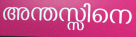
അന്തസ്സിനെ